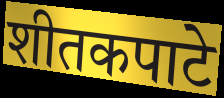
शीतकपाटे